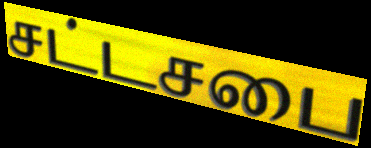
சட்டசபை